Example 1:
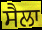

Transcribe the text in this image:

ਸੈਲਾ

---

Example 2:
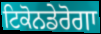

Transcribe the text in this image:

ਟਿਕੋਨਡੇਰੋਗਾ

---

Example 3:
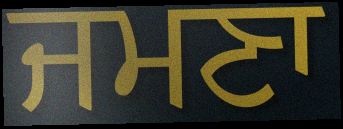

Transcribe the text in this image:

ਜਮਣਾ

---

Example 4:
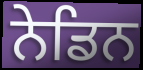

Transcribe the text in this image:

ਨੇਡਿਨ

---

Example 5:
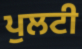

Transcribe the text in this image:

ਪੁਲਟੀ